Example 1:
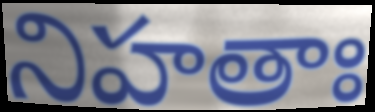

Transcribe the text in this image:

నిహతాః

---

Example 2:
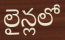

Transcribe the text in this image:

లైన్లలో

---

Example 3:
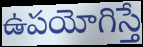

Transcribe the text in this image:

ఉపయోగిస్తే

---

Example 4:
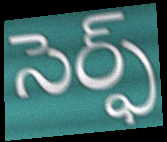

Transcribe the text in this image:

సెర్ఫ్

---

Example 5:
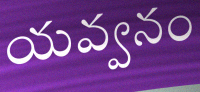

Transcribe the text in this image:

యవ్వనం